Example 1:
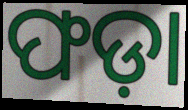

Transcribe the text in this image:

ଫଡ଼ା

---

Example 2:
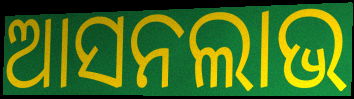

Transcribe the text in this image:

ଆସନଲାଭ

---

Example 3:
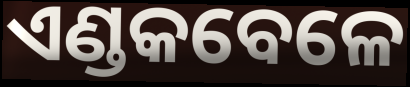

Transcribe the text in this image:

ଏଣ୍ଡକବେଳେ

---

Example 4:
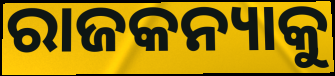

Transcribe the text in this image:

ରାଜକନ୍ୟାକୁ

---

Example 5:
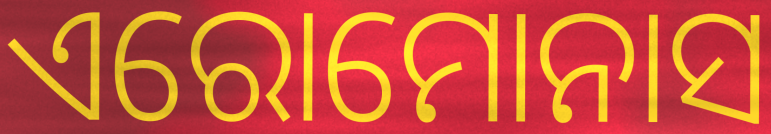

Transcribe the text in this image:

ଏରୋମୋନାସ